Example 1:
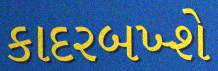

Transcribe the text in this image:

કાદરબખ્શે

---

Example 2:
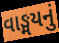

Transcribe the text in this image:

વાઙ્મયનું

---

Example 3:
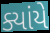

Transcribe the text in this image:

ક્યાંયે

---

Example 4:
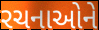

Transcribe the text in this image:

રચનાઓને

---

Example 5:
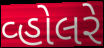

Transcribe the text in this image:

વ્હોલરે